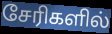
சேரிகளில்